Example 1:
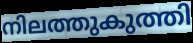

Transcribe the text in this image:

നിലത്തുകുത്തി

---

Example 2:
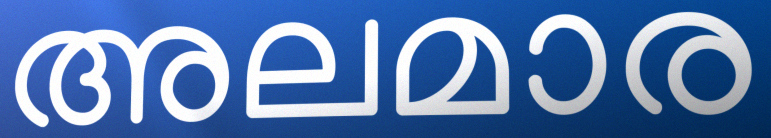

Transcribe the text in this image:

അലമാര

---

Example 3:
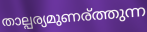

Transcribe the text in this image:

താല്പര്യമുണര്ത്തുന്ന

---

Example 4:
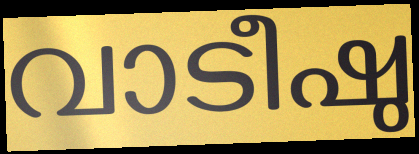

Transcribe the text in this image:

വാടീഷു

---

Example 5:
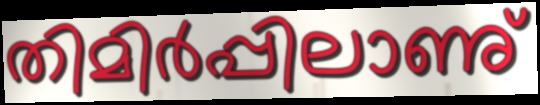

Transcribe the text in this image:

തിമിർപ്പിലാണു്